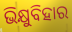
ଭିକ୍ଷୁବିହାର